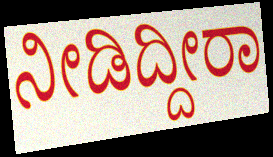
ನೀಡಿದ್ದೀರಾ